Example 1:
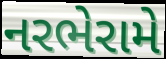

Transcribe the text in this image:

નરભેરામે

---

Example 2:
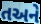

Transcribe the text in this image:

તઅને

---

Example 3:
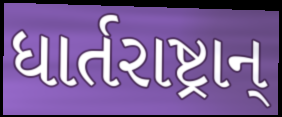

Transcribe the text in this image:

ધાર્તરાષ્ટ્રાન્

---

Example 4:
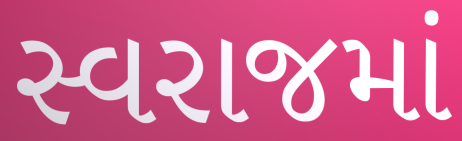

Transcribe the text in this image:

સ્વરાજમાં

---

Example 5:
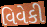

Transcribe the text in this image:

વિવેકી